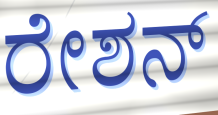
ರೇಶನ್